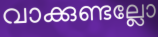
വാക്കുണ്ടല്ലോ